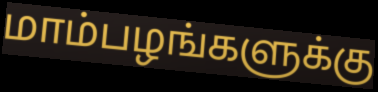
மாம்பழங்களுக்கு